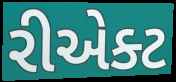
રીએક્ટ